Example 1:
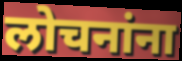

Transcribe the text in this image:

लोचनांना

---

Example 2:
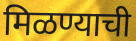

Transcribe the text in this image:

मिळण्याची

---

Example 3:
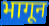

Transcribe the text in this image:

भागून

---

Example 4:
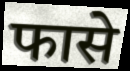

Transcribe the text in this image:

फासे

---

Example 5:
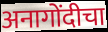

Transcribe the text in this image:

अनागोंदीचा